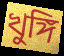
খুঙ্গি